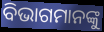
ବିଭାଗମାନଙ୍କୁ